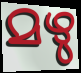
മഴു